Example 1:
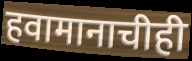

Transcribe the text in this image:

हवामानाचीही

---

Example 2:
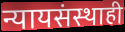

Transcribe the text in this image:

न्यायसंस्थाही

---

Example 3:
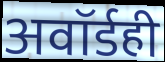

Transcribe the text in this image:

अवॉर्डही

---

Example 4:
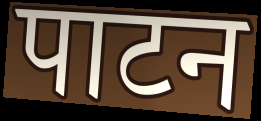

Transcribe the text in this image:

पाटन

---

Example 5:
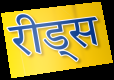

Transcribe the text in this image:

रीड्स